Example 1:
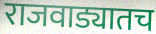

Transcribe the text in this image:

राजवाड्यातच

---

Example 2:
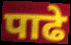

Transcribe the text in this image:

पाढे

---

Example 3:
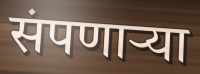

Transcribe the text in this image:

संपणाऱ्या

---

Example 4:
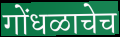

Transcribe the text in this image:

गोंधळाचेच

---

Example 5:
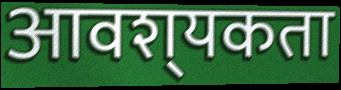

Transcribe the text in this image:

आवश्यकता